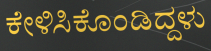
ಕೇಳಿಸಿಕೊಂಡಿದ್ದಳು